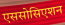
एससोसिएशन